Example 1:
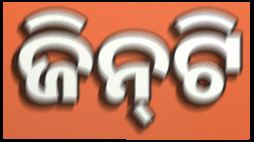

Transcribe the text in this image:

ଜିନ୍‌ଟି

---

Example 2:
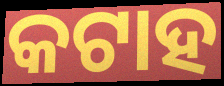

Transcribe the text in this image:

କଟାହ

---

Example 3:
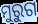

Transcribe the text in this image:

ମୁରୁଗ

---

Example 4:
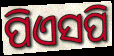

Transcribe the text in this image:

ପିଏସପି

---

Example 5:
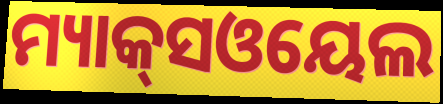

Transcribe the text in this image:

ମ୍ୟାକ୍‌ସଓୟେଲ